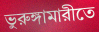
ভুরুঙ্গামারীতে